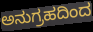
ಅನುಗ್ರಹದಿಂದ